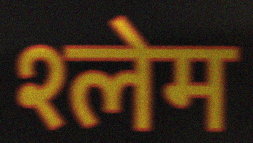
श्लेम